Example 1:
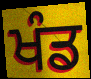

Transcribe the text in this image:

ਖੰਡ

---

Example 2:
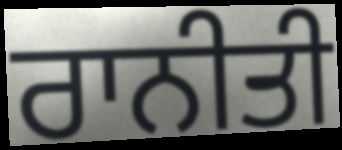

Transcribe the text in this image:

ਰਾਨੀਤੀ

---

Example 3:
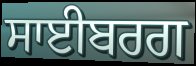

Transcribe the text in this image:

ਸਾਈਬਰਗ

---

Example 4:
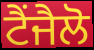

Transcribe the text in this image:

ਟੈਂਜੈਲੋ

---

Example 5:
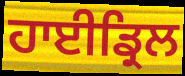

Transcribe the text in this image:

ਹਾਈਡ੍ਰਿਲ